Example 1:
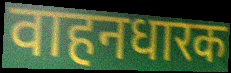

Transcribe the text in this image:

वाहनधारक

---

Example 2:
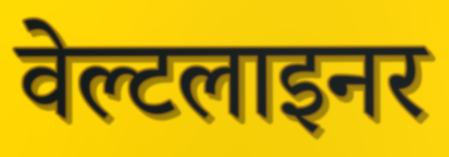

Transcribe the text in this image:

वेल्टलाइनर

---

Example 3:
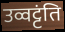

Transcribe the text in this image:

उव्वट्टंति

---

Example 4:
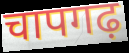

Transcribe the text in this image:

चापगढ़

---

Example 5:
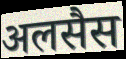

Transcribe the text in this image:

अलसैस